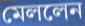
মেললেন